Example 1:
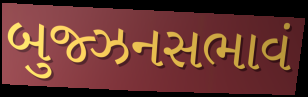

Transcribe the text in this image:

બુજ્ઝનસભાવં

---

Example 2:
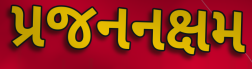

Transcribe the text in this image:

પ્રજનનક્ષમ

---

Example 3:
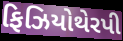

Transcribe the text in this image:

ફિઝિયોથેરપી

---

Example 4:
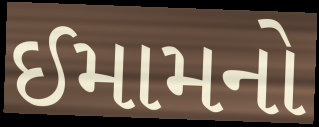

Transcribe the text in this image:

ઈમામનો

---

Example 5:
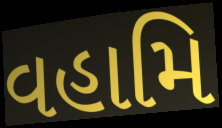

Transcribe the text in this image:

વહામિ